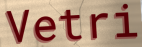
Vetri